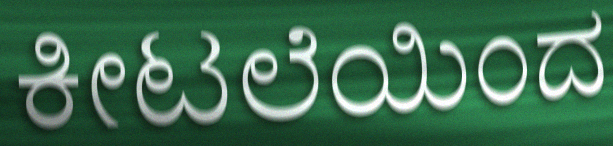
ಕೀಟಲೆಯಿಂದ